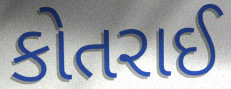
કોતરાઈ